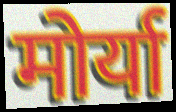
मोर्या